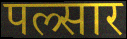
पल्सार